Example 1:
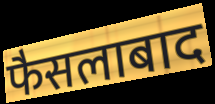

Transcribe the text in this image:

फैसलाबाद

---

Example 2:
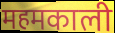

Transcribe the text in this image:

महमकाली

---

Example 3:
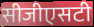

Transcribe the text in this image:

सीजीएसटी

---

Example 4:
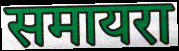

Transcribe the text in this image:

समायरा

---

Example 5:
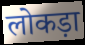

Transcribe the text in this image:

लोकड़ा